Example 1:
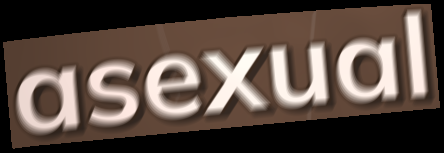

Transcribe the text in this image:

asexual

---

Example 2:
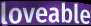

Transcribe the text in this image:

loveable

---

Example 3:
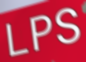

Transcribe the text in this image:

LPS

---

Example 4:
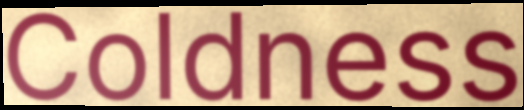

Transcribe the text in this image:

Coldness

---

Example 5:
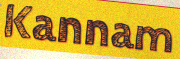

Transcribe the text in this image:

Kannam